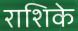
राशिके